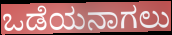
ಒಡೆಯನಾಗಲು